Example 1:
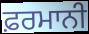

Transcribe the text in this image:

ਫ਼ਰਮਾਨੀ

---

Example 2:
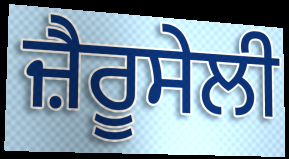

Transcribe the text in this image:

ਜ਼ੈਰੂਸੇਲੀ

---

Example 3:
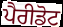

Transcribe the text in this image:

ਪੈਰੀਡੋਟ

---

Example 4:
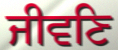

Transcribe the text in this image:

ਜੀਵਣਿ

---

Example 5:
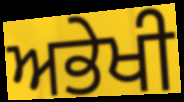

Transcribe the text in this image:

ਅਭੇਖੀ